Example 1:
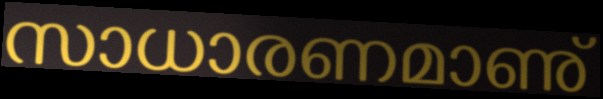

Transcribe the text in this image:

സാധാരണമാണു്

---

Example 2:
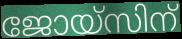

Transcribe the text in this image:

ജോയ്സിന്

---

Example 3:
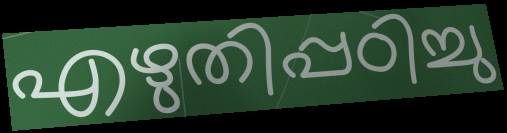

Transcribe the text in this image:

എഴുതിപ്പഠിച്ചു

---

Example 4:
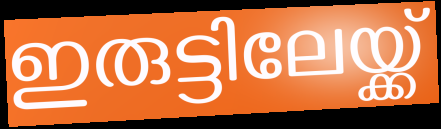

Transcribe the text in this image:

ഇരുട്ടിലേയ്ക്ക്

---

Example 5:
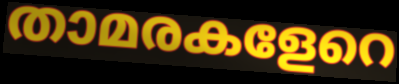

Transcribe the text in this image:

താമരകളേറെ